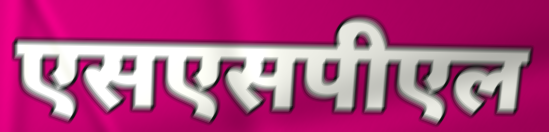
एसएसपीएल